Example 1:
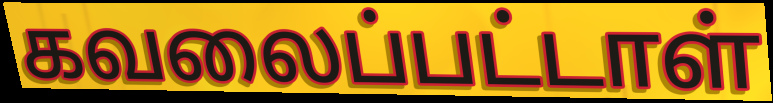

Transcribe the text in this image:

கவலைப்பட்டாள்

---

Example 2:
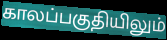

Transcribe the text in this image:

காலப்பகுதியிலும்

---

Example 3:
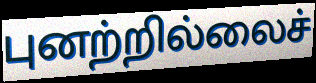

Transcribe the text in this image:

புனற்றில்லைச்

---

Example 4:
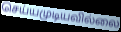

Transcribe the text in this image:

செய்யமுடியவில்லை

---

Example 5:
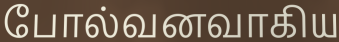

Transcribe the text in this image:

போல்வனவாகிய